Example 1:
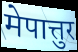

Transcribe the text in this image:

मेपात्तुर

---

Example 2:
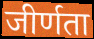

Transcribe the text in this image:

जीर्णता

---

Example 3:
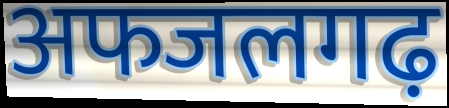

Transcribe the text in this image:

अफजलगढ़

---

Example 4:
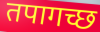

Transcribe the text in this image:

तपागच्छ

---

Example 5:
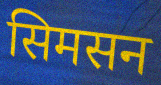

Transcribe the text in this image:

सिमसन